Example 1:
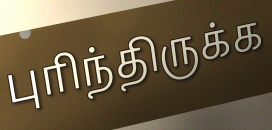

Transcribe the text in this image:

புரிந்திருக்க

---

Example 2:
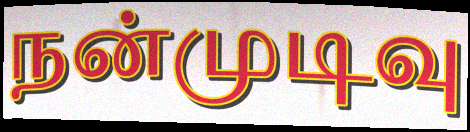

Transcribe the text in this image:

நன்முடிவு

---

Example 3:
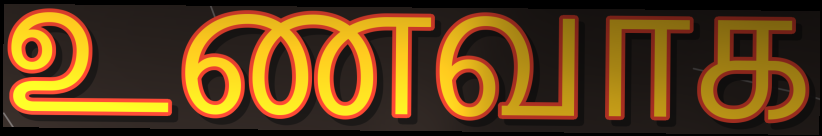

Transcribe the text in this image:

உணவாக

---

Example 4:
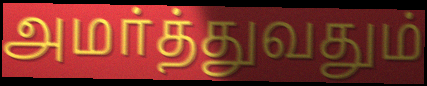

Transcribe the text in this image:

அமர்த்துவதும்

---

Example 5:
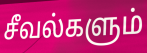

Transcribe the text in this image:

சீவல்களும்